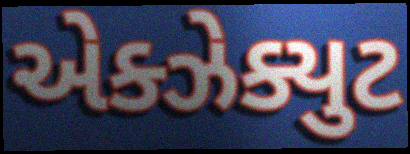
એક્ઝેક્યુટ